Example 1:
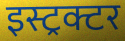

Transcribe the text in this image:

इस्ट्रक्टर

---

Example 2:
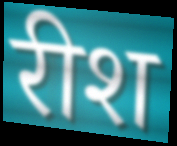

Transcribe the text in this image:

रीश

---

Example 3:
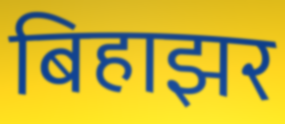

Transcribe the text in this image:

बिहाझर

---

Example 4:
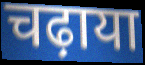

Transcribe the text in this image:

चढ़ाया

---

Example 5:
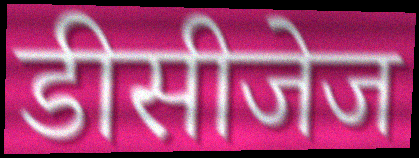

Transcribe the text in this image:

डीसीजेज